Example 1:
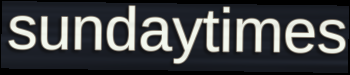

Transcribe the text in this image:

sundaytimes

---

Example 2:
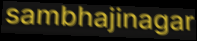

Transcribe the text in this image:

sambhajinagar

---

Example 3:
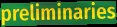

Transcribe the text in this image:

preliminaries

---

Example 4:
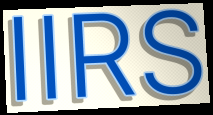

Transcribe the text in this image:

IIRS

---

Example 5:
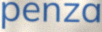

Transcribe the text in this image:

penza